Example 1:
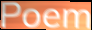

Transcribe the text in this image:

Poem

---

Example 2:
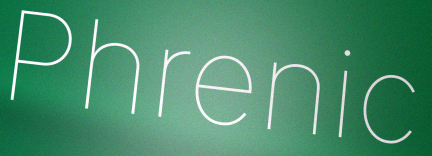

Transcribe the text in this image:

Phrenic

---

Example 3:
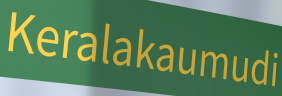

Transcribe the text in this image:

Keralakaumudi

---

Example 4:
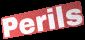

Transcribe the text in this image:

Perils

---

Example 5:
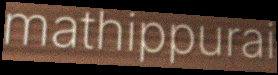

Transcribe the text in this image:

mathippurai